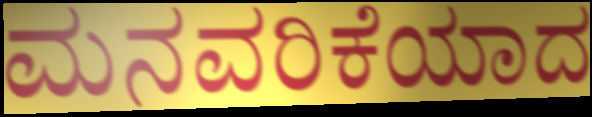
ಮನವರಿಕೆಯಾದ